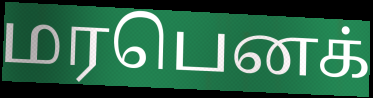
மரபெனக்